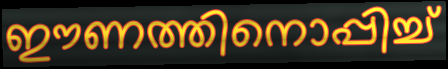
ഈണത്തിനൊപ്പിച്ച്